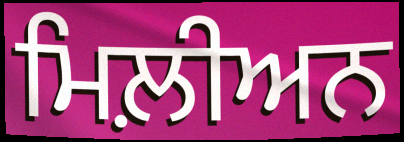
ਮਿਲ਼ੀਅਨ